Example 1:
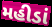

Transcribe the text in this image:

મહીડાં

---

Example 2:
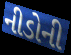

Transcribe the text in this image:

નીડોની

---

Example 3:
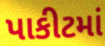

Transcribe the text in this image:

પાકીટમાં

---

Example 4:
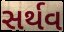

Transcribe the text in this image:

સર્થવ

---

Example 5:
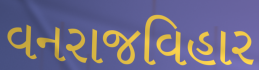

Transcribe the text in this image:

વનરાજવિહાર